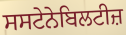
ਸਸਟੇਨੇਬਿਲਟੀਜ਼